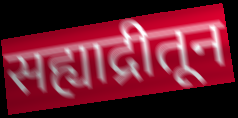
सह्याद्रीतून